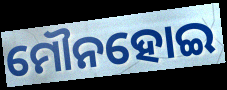
ମୌନହୋଇ